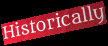
Historically